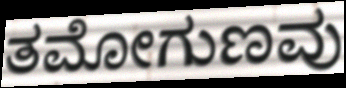
ತಮೋಗುಣವು